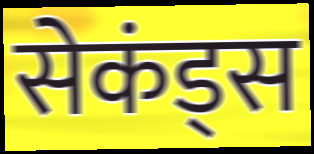
सेकंड्स